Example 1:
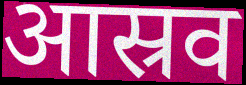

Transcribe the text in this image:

आस्रव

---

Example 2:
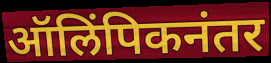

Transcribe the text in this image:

ऑलिंपिकनंतर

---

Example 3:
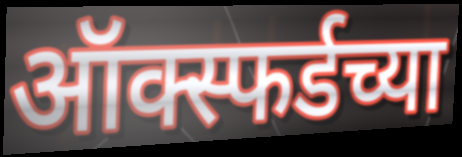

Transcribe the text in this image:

ऑक्स्फर्डच्या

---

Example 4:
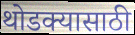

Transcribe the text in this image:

थोडक्यासाठी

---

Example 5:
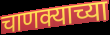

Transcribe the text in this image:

चाणक्याच्या